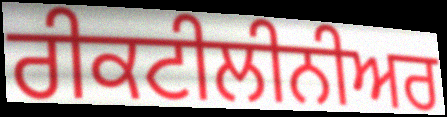
ਰੀਕਟੀਲੀਨੀਅਰ